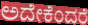
ಅದೇಕೆಂದರೆ